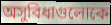
অসুবিধাগুলোকে